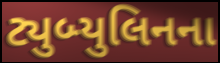
ટ્યુબ્યુલિનના